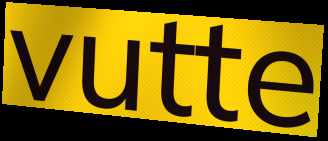
vutte